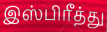
இஸ்பிரீத்து